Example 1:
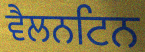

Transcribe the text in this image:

ਵੈਲਨਟਿਨ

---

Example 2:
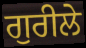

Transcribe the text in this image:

ਗੁਰੀਲੇ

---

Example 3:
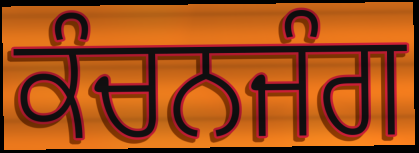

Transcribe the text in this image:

ਕੰਚਨਜੰਗ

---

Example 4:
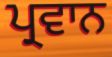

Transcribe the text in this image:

ਪ੍ਰਵਾਨ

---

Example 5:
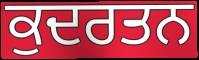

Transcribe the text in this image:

ਕੁਦਰਤਨ